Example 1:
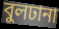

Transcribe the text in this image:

বুলঢানা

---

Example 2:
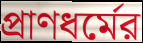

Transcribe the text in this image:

প্রাণধর্মের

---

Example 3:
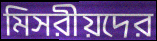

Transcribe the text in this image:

মিসরীয়দের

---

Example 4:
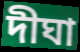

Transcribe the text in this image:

দীঘা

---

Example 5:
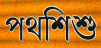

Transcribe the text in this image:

পথশিশু